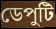
ডেপুটি